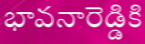
భావనారెడ్డికి